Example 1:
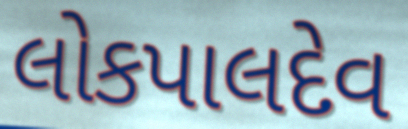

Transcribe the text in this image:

લોકપાલદેવ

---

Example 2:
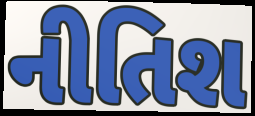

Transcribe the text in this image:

નીતિશ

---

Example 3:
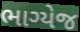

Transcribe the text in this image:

ભાગ્યેજ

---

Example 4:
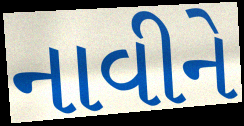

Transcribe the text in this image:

નાવીને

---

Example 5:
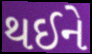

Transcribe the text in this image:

થઈને